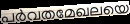
പർവതമേഖലയെ